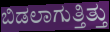
ಬಿಡಲಾಗುತ್ತಿತ್ತು